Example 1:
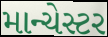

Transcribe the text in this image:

માન્ચેસ્ટર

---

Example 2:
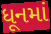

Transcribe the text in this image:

ધૂનમાં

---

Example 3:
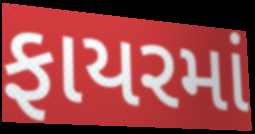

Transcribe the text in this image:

ફાયરમાં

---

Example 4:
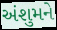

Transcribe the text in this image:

અંશુમને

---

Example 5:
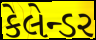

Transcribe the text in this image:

કેલેન્ડર